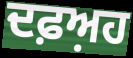
ਦਫ਼ਅ਼ਹ